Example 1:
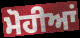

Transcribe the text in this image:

ਮੋਹੀਆਂ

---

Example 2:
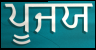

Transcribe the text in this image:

ਪੂਜਯ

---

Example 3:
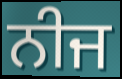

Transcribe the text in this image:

ਨੀਜ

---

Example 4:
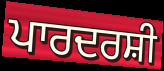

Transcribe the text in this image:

ਪਾਰਦਰਸ਼ੀ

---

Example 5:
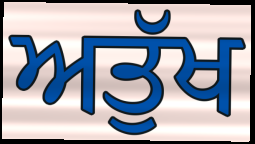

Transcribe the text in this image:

ਅਤੁੱਖ